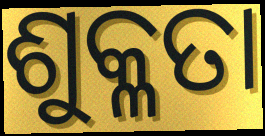
ଶୁକ୍ଳତା